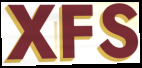
XFS